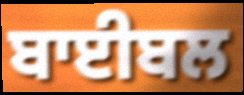
ਬਾਈਬਲ